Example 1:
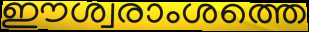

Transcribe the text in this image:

ഈശ്വരാംശത്തെ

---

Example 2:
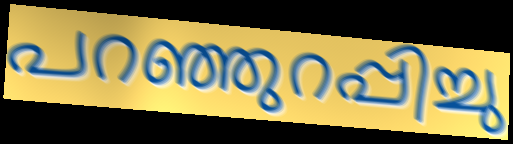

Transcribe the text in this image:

പറഞ്ഞുറപ്പിച്ചു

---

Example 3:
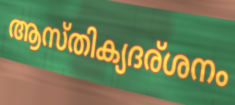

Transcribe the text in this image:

ആസ്തിക്യദര്ശനം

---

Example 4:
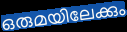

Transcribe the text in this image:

ഒരുമയിലേക്കും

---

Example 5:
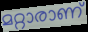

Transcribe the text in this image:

മറ്റാരാണ്